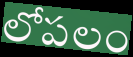
లోపలం